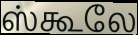
ஸ்கூலே